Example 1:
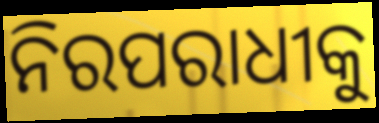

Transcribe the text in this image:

ନିରପରାଧୀକୁ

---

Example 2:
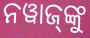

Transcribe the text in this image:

ନୱାଜ୍‍ଙ୍କୁ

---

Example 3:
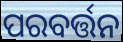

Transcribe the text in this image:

ପରବର୍ତ୍ତନ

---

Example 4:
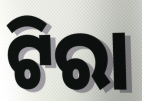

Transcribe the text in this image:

ଟିରା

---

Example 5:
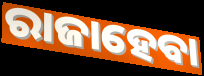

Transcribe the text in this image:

ରାଜାହେବା